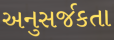
અનુસર્જકતા